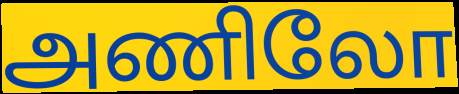
அணிலோ